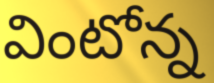
వింటోన్న